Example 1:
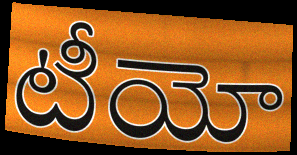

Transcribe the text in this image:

టీయో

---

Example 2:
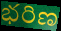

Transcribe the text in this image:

భరిణ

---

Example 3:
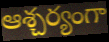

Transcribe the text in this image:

ఆశ్చర్యంగా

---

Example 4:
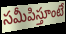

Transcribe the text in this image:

సమీపిస్తూంటే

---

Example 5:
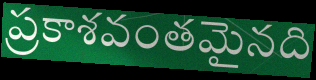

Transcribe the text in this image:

ప్రకాశవంతమైనది